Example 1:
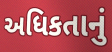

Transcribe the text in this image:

અધિકતાનું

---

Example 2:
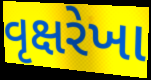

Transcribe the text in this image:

વૃક્ષરેખા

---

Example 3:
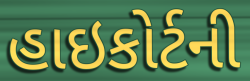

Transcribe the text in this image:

હાઇકોર્ટની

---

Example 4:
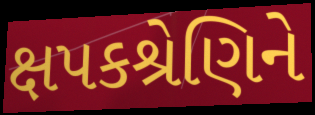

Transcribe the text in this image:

ક્ષપકશ્રેણિને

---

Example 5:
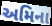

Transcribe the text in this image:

અમિના